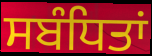
ਸਬੰਧਿਤਾਂ